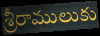
శ్రీరాములుకు